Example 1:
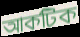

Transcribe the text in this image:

আর্কটিক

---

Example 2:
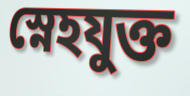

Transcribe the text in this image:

স্নেহযুক্ত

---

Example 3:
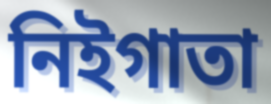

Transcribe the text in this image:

নিইগাতা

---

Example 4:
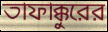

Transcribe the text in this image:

তাফাক্কুরের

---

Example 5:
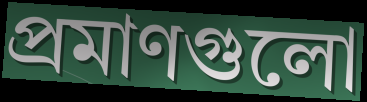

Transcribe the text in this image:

প্রমাণগুলো